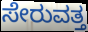
ಸೇರುವತ್ತ